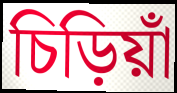
চিড়িয়াঁ